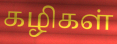
கழிகள்